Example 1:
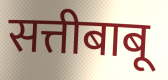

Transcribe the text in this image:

सत्तीबाबू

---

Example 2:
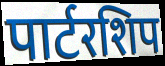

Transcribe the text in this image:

पार्टरशिप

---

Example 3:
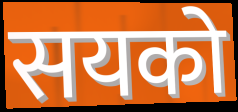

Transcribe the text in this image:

सयको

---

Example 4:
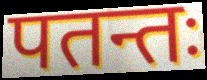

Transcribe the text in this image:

पतन्तः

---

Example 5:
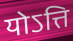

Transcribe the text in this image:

योऽत्ति